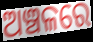
ଅଞ୍ଚଳରେ